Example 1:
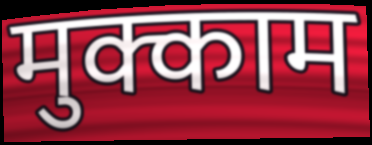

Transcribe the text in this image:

मुक्काम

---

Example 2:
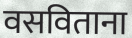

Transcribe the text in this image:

वसविताना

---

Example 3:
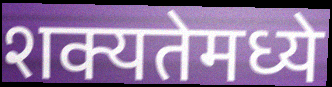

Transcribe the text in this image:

शक्यतेमध्ये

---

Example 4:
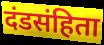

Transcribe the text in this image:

दंडसंहिता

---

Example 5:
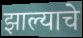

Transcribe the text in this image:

झाल्याचे